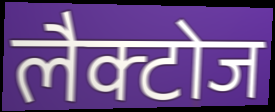
लैक्‍टोज